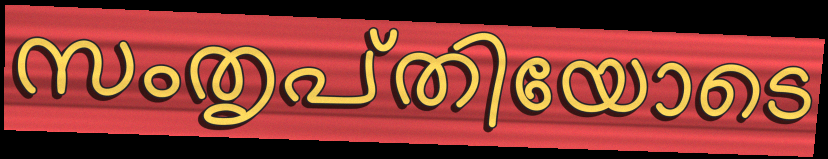
സംതൃപ്‌തിയോടെ